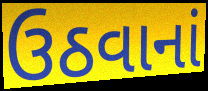
ઉઠવાનાં